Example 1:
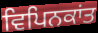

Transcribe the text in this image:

ਵਿਪਿਨਕਾਂਤ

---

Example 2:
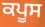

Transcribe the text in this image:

ਕਪੂਸ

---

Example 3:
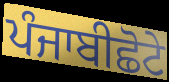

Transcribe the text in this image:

ਪੰਜਾਬੀਛੋਟੇ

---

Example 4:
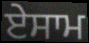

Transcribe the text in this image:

ਏਸਾਮ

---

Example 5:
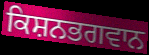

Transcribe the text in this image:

ਕਿਸ਼ਨਭਗਵਾਨ